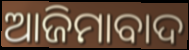
ଆଜିମାବାଦ